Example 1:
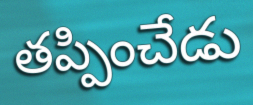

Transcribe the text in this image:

తప్పించేడు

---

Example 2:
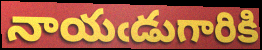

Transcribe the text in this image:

నాయఁడుగారికి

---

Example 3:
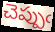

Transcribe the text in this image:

చెప్పుఁ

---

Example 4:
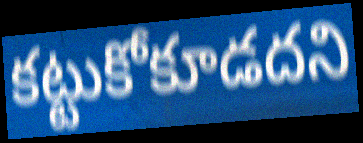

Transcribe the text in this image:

కట్టుకోకూడదని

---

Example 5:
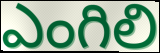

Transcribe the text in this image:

ఎంగిలి